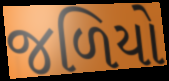
જળિયો